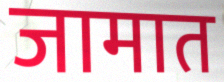
जामात